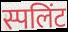
स्पलिंट